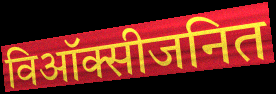
विऑक्सीजनित